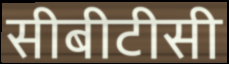
सीबीटीसी